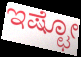
ಇಷ್ಟೋ